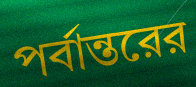
পর্বান্তরের